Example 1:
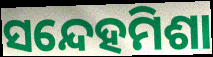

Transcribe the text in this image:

ସନ୍ଦେହମିଶା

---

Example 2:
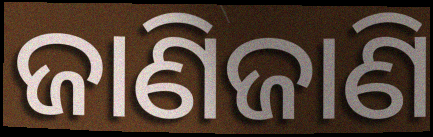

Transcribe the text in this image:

ଜାଣିଜାଣି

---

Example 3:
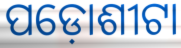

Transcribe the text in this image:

ପଡ଼ୋଶୀଟା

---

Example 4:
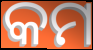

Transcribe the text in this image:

କମ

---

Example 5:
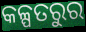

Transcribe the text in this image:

କଳ୍ପତରୁର